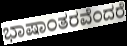
ಭಾಷಾಂತರವೆಂದರೆ